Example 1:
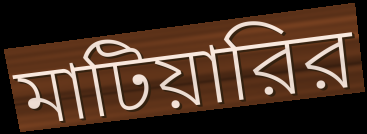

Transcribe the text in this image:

মাটিয়ারির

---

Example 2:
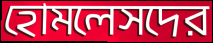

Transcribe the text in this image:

হোমলেসদের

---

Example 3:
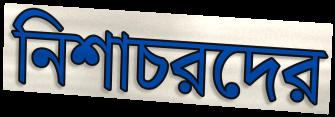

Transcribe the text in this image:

নিশাচরদের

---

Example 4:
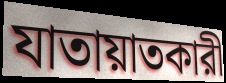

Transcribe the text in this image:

যাতায়াতকারী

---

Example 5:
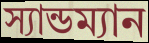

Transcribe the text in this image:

স্যান্ডম্যান